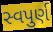
સ્વપુર્ણ